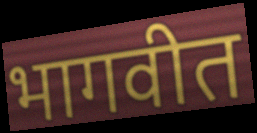
भागवीत